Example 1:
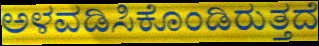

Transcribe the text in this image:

ಅಳವಡಿಸಿಕೊಂಡಿರುತ್ತದೆ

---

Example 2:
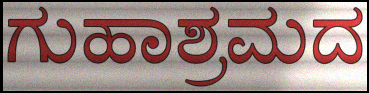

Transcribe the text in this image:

ಗುಹಾಶ್ರಮದ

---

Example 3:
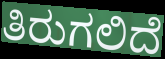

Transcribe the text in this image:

ತಿರುಗಲಿದೆ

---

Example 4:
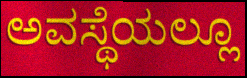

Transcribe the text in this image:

ಅವಸ್ಥೆಯಲ್ಲೂ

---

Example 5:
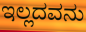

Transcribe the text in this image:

ಇಲ್ಲದವನು